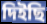
দিইছি